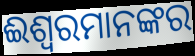
ଈଶ୍ୱରମାନଙ୍କର